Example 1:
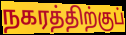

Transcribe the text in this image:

நகரத்திற்குப்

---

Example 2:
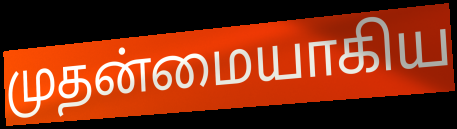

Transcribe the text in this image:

முதன்மையாகிய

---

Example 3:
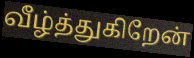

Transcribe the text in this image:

வீழ்த்துகிறேன்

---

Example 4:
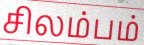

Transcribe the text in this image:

சிலம்பம்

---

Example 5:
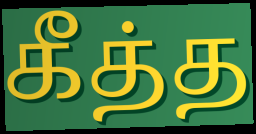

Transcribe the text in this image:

கீத்த